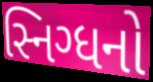
સ્નિગ્ધનો